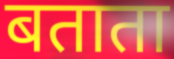
बताता